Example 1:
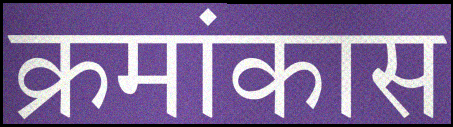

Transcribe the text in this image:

क्रमांकास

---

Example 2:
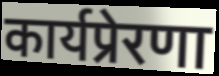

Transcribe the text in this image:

कार्यप्रेरणा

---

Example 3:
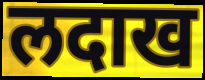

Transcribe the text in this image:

लदाख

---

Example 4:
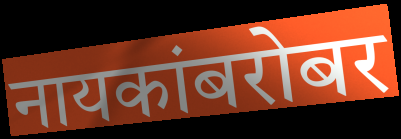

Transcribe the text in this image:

नायकांबरोबर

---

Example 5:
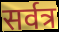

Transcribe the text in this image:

सर्वत्र